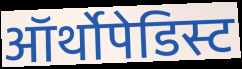
ऑर्थोपेडिस्ट